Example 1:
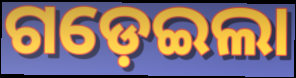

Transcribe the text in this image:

ଗଡ଼େଇଲା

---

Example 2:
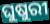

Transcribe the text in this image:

ଘୁଷୁରୀ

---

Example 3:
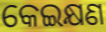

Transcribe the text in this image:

କେଇକ୍ଷଣ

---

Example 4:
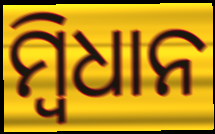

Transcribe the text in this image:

ମ୍ବିଧାନ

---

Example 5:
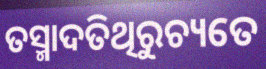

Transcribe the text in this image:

ତସ୍ମାଦତିଥିରୁଚ୍ୟତେ